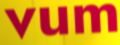
vum